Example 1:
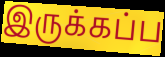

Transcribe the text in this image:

இருக்கப்ப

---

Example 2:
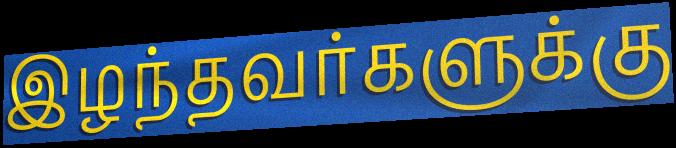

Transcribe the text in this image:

இழந்தவர்களுக்கு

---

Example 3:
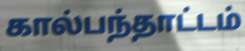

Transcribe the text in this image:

கால்பந்தாட்டம்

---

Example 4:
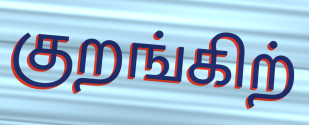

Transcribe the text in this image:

குறங்கிற்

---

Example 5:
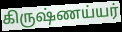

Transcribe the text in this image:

கிருஷ்ணய்யர்